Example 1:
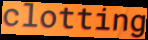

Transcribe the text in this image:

clotting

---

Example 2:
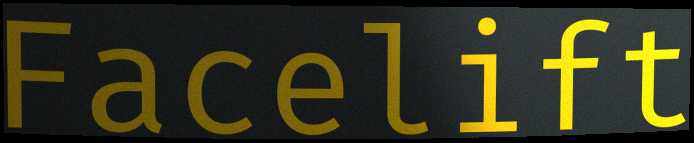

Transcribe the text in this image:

Facelift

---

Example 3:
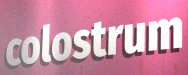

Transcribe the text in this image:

colostrum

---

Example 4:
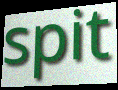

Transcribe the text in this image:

spit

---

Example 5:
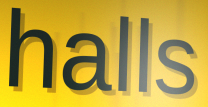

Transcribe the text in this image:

halls